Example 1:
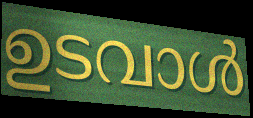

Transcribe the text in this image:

ഉടവാൾ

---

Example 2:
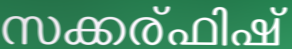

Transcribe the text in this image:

സക്കര്ഫിഷ്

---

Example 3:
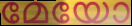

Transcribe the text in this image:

മേയോ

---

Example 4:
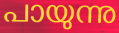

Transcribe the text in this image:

പായുന്നു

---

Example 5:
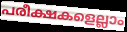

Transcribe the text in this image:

പരീക്ഷകളെല്ലാം